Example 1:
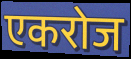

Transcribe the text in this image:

एकरोज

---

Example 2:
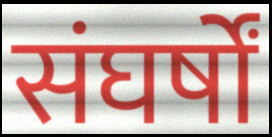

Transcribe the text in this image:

संघर्षों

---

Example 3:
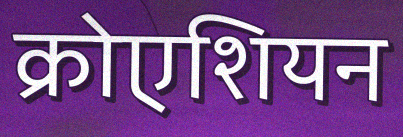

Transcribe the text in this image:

क्रोएशियन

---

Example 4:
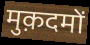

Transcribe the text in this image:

मुक़दमों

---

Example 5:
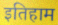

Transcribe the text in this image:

इतिहाम